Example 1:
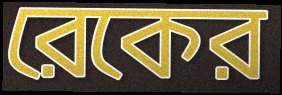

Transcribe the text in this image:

রেকের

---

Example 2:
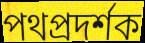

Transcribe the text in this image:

পথপ্রদর্শক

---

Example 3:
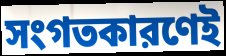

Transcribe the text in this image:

সংগতকারণেই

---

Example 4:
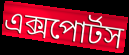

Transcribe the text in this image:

এক্সপোর্টস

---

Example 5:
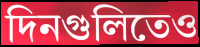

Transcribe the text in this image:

দিনগুলিতেও